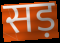
सड़